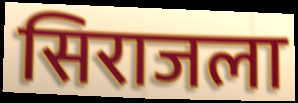
सिराजला